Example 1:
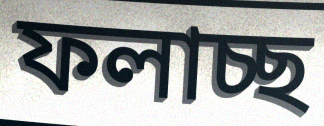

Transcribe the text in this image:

ফলাচ্ছ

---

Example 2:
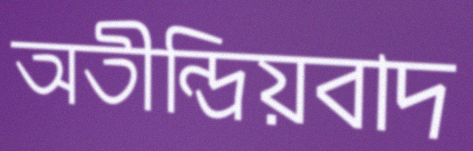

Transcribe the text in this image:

অতীন্দ্রিয়বাদ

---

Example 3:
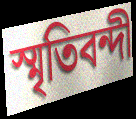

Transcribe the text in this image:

স্মৃতিবন্দী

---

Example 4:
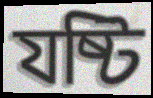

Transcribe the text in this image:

যষ্টি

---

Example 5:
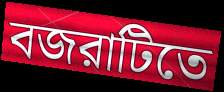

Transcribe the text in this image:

বজরাটিতে